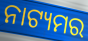
ନାଟ୍ୟମର